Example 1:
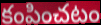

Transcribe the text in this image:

కంపించటం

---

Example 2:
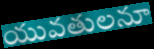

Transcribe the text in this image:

యువతులనూ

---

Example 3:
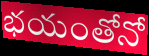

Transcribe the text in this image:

భయంతోనో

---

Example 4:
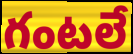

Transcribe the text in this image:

గంటలే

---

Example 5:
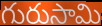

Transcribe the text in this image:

గురుసామి